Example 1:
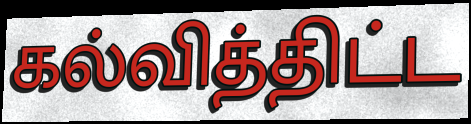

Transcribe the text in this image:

கல்வித்திட்ட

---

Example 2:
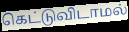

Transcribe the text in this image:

கெட்டுவிடாமல்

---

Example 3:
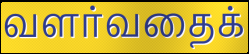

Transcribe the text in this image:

வளர்வதைக்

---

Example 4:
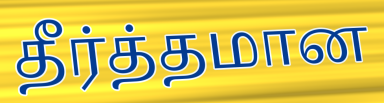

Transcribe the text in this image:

தீர்த்தமான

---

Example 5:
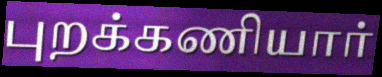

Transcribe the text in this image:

புறக்கணியார்